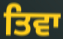
ਤਿਵਾ